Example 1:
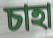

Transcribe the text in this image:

চাহা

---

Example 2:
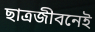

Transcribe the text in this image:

ছাত্রজীবনেই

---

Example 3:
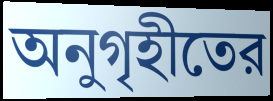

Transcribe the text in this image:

অনুগৃহীতের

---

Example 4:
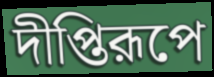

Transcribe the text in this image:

দীপ্তিরূপে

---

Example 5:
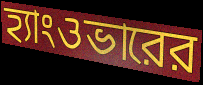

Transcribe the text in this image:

হ্যাংওভারের